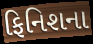
ફિનિશના